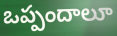
ఒప్పందాలూ